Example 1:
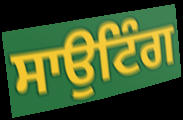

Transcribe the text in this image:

ਸਾਉਟਿੰਗ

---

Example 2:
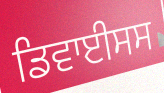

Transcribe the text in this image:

ਡਿਵਾਈਸਸ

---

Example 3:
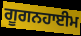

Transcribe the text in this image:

ਗੂਗਨਹਾਈਮ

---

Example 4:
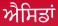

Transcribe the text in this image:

ਐਸਿਡਾਂ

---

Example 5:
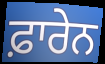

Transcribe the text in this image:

ਫ਼ਾਰੇਨ